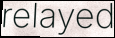
relayed